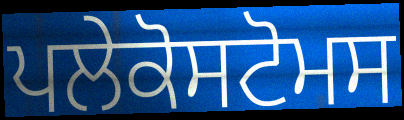
ਪਲੇਕੋਸਟੋਮਸ